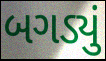
બગડ્યું